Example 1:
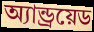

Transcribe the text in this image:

অ্যান্ড্রয়েড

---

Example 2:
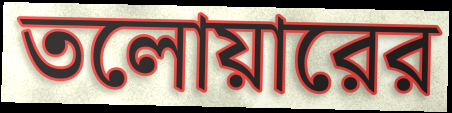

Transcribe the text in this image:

তলোয়ারের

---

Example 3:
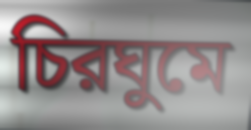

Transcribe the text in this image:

চিরঘুমে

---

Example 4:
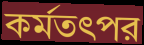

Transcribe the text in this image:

কর্মতৎপর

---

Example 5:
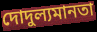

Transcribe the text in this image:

দোদুল্যমানতা